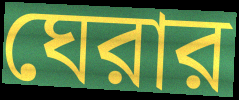
ঘেরার